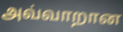
அவ்வாறான